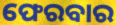
ଫେରବାର